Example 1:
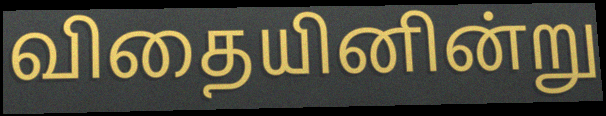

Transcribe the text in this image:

விதையினின்று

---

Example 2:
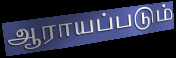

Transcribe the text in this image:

ஆராயப்படும்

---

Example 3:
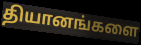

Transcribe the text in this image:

தியானங்களை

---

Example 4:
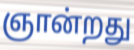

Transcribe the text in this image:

ஞான்றது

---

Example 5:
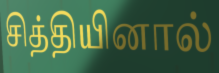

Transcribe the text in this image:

சித்தியினால்